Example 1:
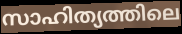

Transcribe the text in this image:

സാഹിത്യത്തിലെ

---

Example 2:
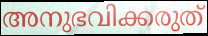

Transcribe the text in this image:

അനുഭവിക്കരുത്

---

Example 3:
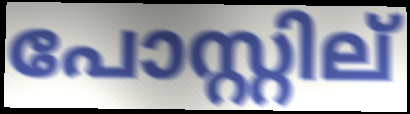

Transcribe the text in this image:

പോസ്റ്റില്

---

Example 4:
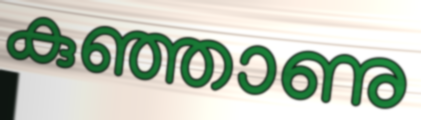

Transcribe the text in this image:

കുഞ്ഞാണു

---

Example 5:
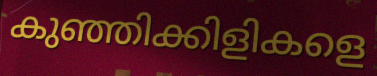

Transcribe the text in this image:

കുഞ്ഞിക്കിളികളെ